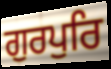
ਗੁਰਪੁਰਿ